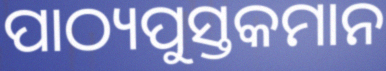
ପାଠ୍ୟପୁସ୍ତକମାନ